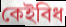
কেইবিধ